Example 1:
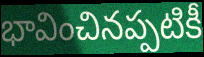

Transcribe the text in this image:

భావించినప్పటికీ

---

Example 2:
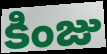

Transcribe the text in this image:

కింజు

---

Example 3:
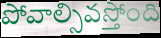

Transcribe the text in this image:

పోవాల్సివస్తోంది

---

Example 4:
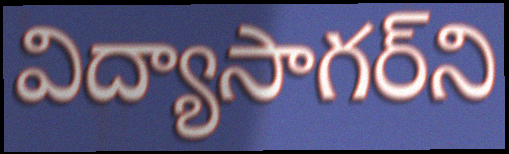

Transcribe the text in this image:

విద్యాసాగర్‌ని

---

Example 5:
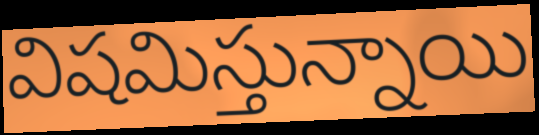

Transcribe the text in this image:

విషమిస్తున్నాయి